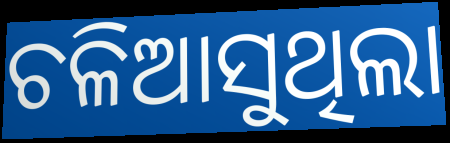
ଚଳିଆସୁଥିଲା